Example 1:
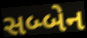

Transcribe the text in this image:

સબ્બેન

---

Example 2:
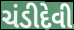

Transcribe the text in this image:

ચંડીદેવી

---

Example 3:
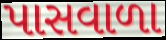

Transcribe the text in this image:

પાસવાળા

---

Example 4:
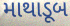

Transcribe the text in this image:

માથાડૂબ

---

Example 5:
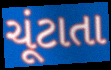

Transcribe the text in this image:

ચૂંટાતા